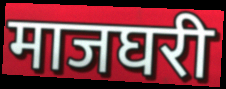
माजघरी